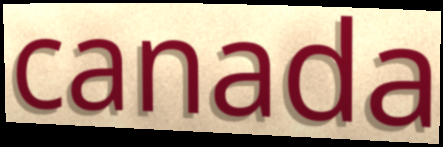
canada